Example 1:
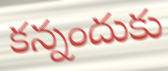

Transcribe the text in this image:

కన్నందుకు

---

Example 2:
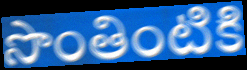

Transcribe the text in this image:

సొంతింటికి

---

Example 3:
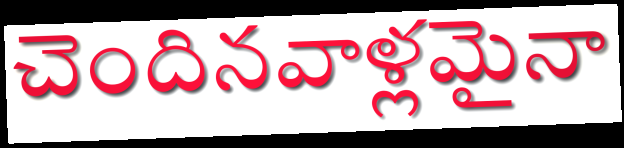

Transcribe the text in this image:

చెందినవాళ్లమైనా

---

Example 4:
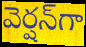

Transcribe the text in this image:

వెర్షన్‌గా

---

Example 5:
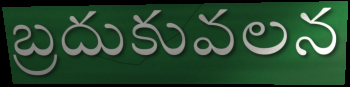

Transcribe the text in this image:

బ్రదుకువలన